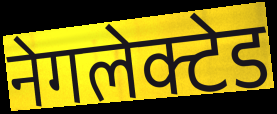
नेगलेक्टेड